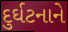
દુર્ઘટનાને